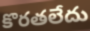
కొరతలేదు